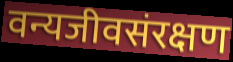
वन्यजीवसंरक्षण